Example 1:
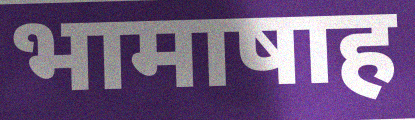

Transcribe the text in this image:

भामाषाह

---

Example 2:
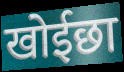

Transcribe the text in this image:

खोईछा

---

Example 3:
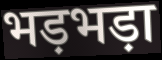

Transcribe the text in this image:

भड़भड़ा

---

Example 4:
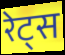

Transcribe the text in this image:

रेट्स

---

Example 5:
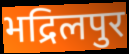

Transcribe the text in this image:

भद्रिलपुर